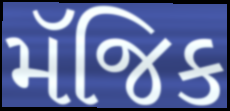
મૅજિક